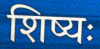
शिष्यः